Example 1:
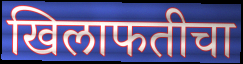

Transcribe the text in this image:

खिलाफतीचा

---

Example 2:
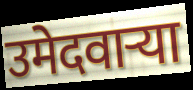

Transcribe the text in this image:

उमेदवाऱ्या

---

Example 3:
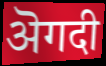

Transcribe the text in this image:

ऄगदी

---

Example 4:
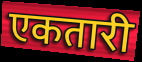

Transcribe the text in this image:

एकतारी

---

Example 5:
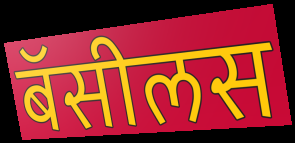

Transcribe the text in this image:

बॅसीलस